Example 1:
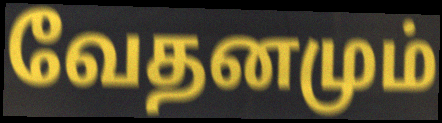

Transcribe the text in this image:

வேதனமும்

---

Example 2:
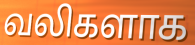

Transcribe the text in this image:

வலிகளாக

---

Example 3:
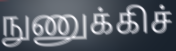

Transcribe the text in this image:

நுணுக்கிச்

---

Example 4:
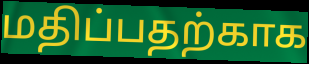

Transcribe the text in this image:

மதிப்பதற்காக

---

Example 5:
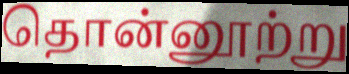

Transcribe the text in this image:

தொன்னூற்று